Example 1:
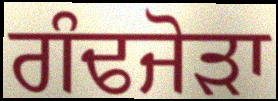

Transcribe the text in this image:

ਗੰਢਜੋੜਾ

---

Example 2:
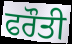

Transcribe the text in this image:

ਫਰੌਤੀ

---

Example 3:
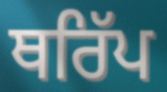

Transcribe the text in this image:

ਥਰਿੱਪ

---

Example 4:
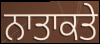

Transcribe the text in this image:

ਨਾਤਾਕਤੇ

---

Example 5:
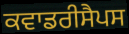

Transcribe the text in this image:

ਕਵਾਡਰੀਸੈਪਸ